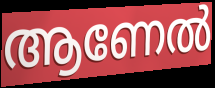
ആണേൽ